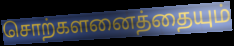
சொற்களனைத்தையும்